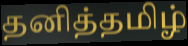
தனித்தமிழ்